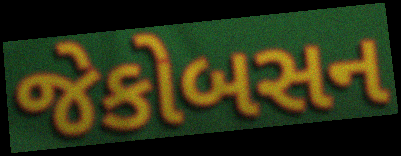
જેકોબસન